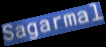
Sagarmal